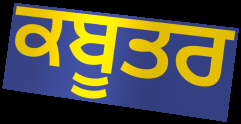
ਕਬੂਤਰ